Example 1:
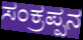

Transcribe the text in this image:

ಸಂಕ್ರಪ್ಪನ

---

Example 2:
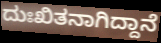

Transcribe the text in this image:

ದುಃಖಿತನಾಗಿದ್ದಾನೆ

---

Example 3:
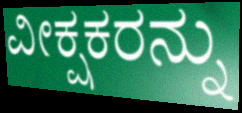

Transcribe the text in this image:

ವೀಕ್ಷಕರನ್ನು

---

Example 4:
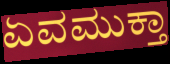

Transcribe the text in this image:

ಏವಮುಕ್ತಾ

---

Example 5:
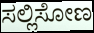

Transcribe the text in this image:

ಸಲ್ಲಿಸೋಣ